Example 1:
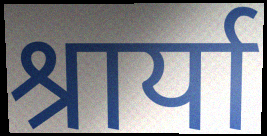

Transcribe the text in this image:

श्रार्या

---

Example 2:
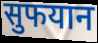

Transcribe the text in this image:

सुफयान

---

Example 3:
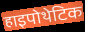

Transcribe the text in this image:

हाइपोथेटिक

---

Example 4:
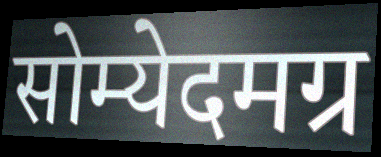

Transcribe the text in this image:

सोम्येदमग्र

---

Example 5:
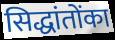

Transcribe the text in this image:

सिद्धांतोंका